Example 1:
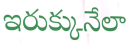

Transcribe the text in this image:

ఇరుక్కునేలా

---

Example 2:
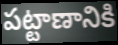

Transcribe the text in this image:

పట్టాణానికి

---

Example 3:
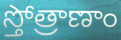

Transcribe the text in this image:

స్తోత్రాణాం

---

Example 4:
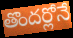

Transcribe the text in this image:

తొందర్లోనే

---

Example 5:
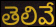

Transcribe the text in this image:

తెలివే